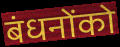
बंधनोंको